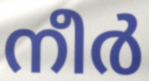
നീർ